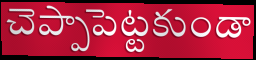
చెప్పాపెట్టకుండా